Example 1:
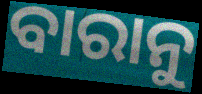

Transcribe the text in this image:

ବାରାନୁ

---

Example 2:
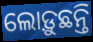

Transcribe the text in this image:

ଲୋଡ଼ୁଛନ୍ତି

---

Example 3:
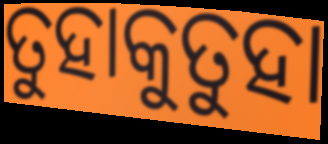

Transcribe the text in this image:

ତୁହାକୁତୁହା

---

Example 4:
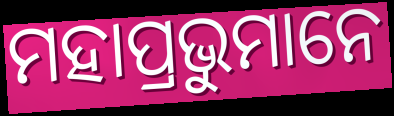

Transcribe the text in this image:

ମହାପ୍ରଭୁମାନେ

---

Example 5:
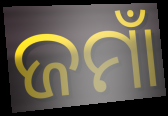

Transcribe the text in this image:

ଜମାଁ